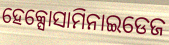
ହେକ୍ସୋସାମିନାଇଡେଜ